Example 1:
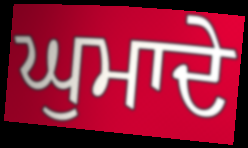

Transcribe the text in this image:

ਘੁਮਾਦੇ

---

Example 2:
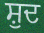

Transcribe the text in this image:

ਸ਼ੁਦ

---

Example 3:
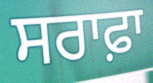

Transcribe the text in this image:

ਸਰਾਫ਼ਾ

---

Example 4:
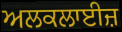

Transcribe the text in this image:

ਅਲਕਲਾਈਜ਼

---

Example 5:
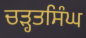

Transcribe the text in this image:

ਚੜ੍ਹਤਸਿੰਘ